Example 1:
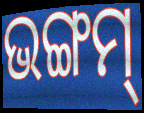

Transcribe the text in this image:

ଭଙ୍ଗମ୍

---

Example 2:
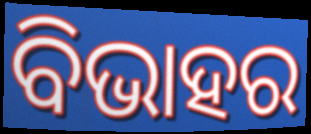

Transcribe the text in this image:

ବିଭାହର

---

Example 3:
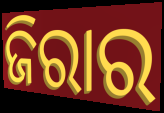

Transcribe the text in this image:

ଜିରାର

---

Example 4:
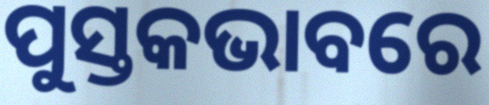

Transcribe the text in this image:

ପୁସ୍ତକଭାବରେ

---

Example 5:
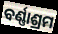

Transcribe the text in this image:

ବର୍ଣ୍ଣାଶ୍ରମ